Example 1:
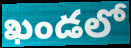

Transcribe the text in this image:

ఖండలో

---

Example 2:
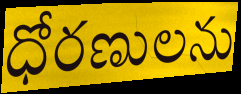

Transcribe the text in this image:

ధోరణులను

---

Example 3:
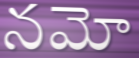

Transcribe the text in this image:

నమో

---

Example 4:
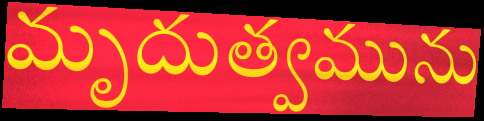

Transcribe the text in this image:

మృదుత్వమును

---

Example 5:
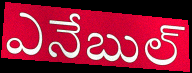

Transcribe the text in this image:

ఎనేబుల్